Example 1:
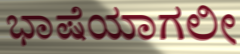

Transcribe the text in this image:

ಭಾಷೆಯಾಗಲೀ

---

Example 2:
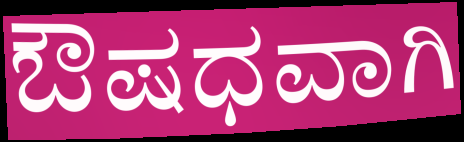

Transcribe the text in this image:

ಔಷಧವಾಗಿ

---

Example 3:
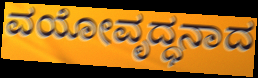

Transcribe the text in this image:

ವಯೋವೃದ್ಧನಾದ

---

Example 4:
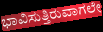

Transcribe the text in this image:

ಭಾವಿಸುತ್ತಿರುವಾಗಲೇ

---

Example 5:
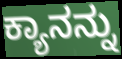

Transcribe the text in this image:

ಕ್ಯಾನನ್ನು